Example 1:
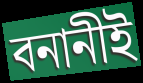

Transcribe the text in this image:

বনানীই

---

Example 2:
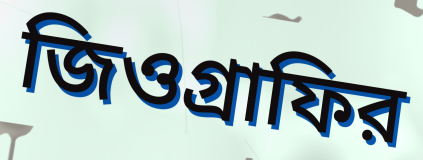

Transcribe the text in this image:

জিওগ্রাফির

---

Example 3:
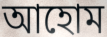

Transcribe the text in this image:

আহোম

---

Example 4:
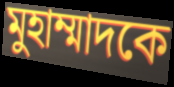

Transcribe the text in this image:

মুহাম্মাদকে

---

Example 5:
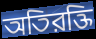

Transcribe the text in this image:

অতিরক্তি